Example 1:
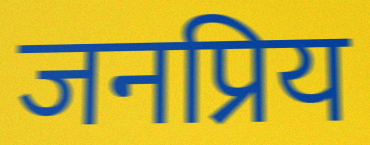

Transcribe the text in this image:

जनप्रिय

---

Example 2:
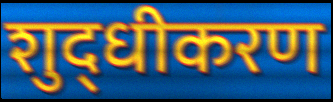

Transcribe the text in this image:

शुद्धीकरण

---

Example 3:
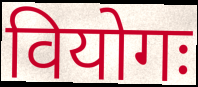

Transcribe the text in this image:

वियोगः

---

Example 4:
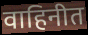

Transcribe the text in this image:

वाहिनीत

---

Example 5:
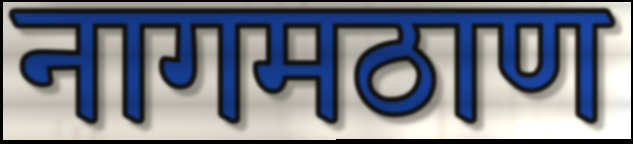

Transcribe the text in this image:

नागमठाण